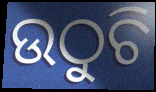
ଉଠୁଚି